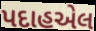
પદાહએલ